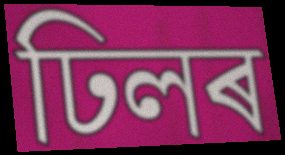
ঢিলৰ